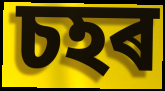
চহৰ